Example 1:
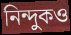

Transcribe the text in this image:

নিন্দুকও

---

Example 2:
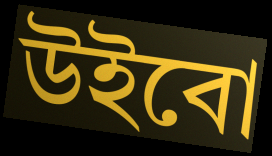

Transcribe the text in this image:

উইবো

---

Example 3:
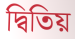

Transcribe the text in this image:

দ্বিতিয়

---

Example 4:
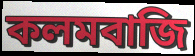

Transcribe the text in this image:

কলমবাজি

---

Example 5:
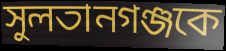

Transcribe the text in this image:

সুলতানগঞ্জকে